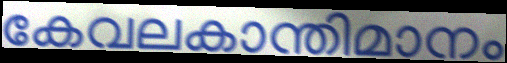
കേവലകാന്തിമാനം